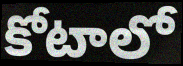
కోటాలో